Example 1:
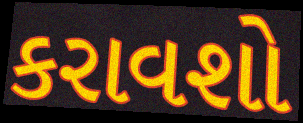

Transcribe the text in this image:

કરાવશો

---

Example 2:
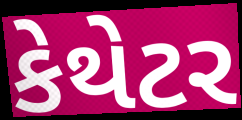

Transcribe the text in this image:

કેથેટર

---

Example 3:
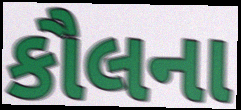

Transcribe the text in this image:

કૌલના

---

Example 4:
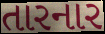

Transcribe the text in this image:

તારનાર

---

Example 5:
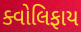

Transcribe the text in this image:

ક્વોલિફાય